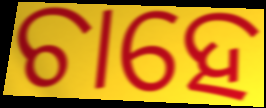
ଚାହେ